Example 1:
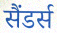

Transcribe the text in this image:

सैंडर्स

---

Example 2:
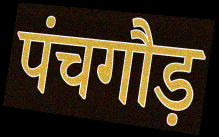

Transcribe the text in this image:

पंचगौड़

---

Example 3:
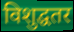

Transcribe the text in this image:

विशुद्धतर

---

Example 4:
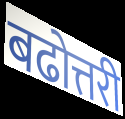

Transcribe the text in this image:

बढोत्तरी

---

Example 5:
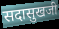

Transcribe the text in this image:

सदासुखजी